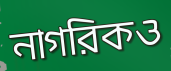
নাগরিকও